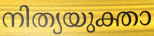
നിത്യയുക്താ